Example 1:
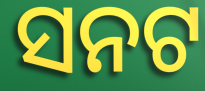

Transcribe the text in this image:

ସନଟ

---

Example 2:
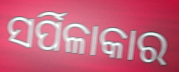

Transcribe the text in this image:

ସର୍ପିଳାକାର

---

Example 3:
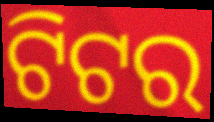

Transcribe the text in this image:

ଟିଟର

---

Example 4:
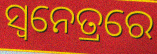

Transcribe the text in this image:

ସ୍ୱନେତ୍ରରେ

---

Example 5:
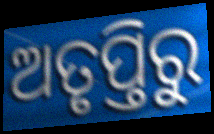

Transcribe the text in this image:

ଅତୃପ୍ତିରୁ